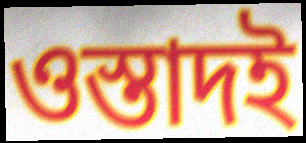
ওস্তাদই